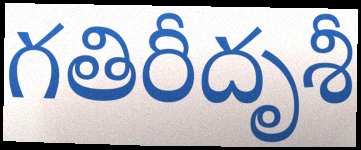
గతిరీదృశీ